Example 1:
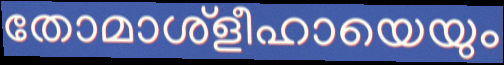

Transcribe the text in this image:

തോമാശ്ളീഹായെയും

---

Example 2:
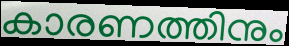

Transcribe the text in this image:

കാരണത്തിനും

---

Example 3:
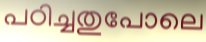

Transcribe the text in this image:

പഠിച്ചതുപോലെ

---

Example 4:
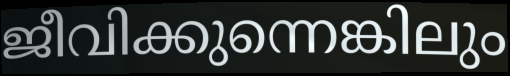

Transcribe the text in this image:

ജീവിക്കുന്നെങ്കിലും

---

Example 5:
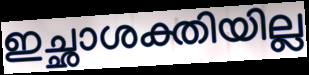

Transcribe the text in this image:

ഇച്ഛാശക്തിയില്ല